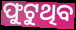
ଫୁଟୁଥିବ